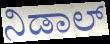
ನಿಡಾಲ್